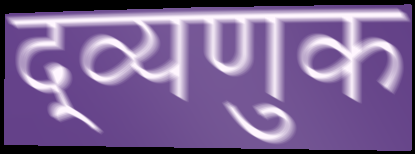
द्व्यणुक